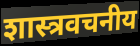
शास्त्रवचनीय